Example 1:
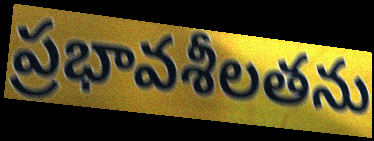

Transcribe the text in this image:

ప్రభావశీలతను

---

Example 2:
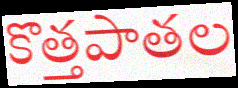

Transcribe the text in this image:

కొత్తపాతల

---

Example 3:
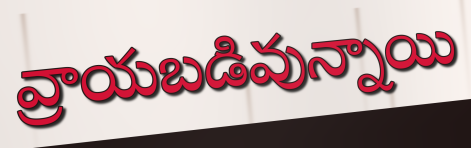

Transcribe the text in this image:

వ్రాయబడివున్నాయి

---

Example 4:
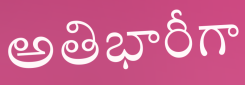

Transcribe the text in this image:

అతిభారీగా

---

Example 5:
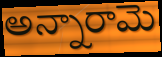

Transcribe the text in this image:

అన్నారామె